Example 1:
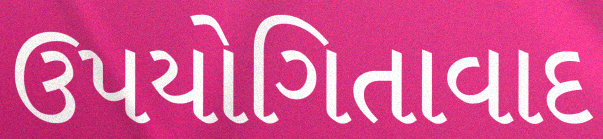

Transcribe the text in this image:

ઉપયોગિતાવાદ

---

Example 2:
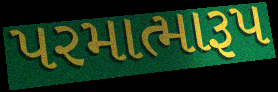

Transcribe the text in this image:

પરમાત્મારૂપ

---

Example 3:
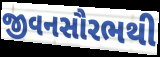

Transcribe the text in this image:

જીવનસૌરભથી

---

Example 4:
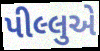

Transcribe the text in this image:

પીલ્લુએ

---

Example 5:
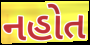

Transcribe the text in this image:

નહોત